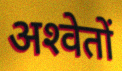
अश्‍वेतों